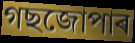
গছজোপাৰ